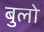
बुलो